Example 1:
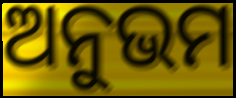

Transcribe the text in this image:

ଅନୁଭମ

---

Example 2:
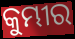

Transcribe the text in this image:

କୁମ୍ଭୀର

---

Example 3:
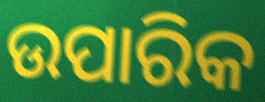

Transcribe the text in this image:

ଉପାରିକ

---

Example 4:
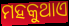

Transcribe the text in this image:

ମହକୁଥାଏ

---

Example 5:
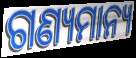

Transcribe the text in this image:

ଗଣ୍ୟମାନ୍ୟ